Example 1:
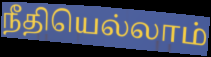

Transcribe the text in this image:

நீதியெல்லாம்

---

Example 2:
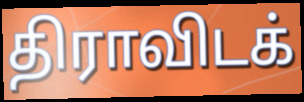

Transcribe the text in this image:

திராவிடக்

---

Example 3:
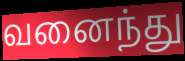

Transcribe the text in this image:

வனைந்து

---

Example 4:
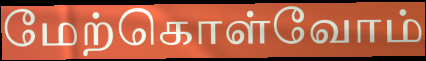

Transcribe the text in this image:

மேற்கொள்வோம்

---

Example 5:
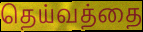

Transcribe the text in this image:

தெய்வத்தை